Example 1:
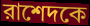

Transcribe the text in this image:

রাশেদকে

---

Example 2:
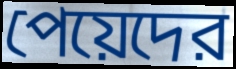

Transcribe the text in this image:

পেয়েদের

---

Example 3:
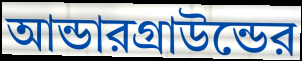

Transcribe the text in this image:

আন্ডারগ্রাউন্ডের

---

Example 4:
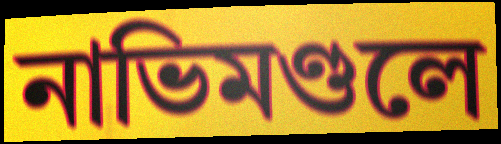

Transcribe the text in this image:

নাভিমণ্ডলে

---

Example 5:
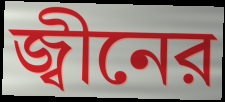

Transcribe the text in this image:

জ্বীনের